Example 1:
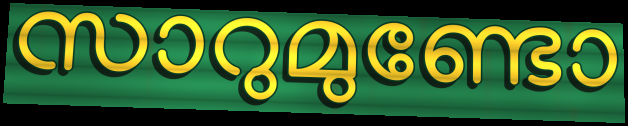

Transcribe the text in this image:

സാറുമുണ്ടോ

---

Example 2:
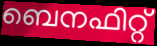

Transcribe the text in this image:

ബെനഫിറ്റ്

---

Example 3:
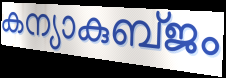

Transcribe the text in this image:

കന്യാകുബ്ജം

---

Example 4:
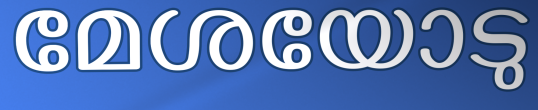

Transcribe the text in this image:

മേശയോടു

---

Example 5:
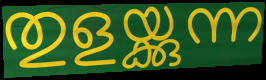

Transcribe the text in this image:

തുളയ്ക്കുന്ന